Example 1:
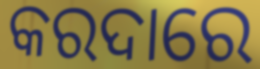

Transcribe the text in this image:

କରଦାରେ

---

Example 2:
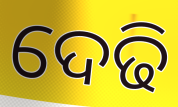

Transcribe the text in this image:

ଦେଢି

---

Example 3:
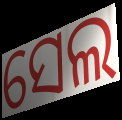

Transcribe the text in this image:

ସେଲ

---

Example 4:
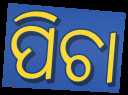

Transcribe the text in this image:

ପିଚା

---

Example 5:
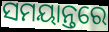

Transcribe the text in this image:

ସମୟାନ୍ତରେ